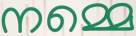
നമ്മെ